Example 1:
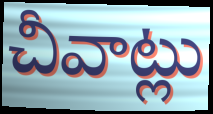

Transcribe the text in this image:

చీవాట్లు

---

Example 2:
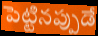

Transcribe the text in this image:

పెట్టినప్పుడే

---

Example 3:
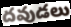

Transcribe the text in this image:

దవుడలు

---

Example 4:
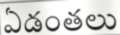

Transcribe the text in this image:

ఏడంతలు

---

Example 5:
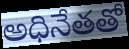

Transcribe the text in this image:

అధినేతతో